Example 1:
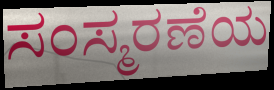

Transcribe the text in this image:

ಸಂಸ್ಮರಣೆಯ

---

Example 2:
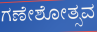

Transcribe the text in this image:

ಗಣೇಶೋತ್ಸವ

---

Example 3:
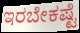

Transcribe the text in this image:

ಇರಬೇಕಷ್ಟೆ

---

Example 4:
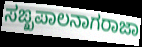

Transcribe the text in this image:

ಸಙ್ಖಪಾಲನಾಗರಾಜಾ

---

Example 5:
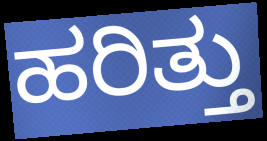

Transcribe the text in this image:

ಹರಿತ್ತು